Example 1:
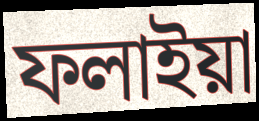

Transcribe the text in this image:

ফলাইয়া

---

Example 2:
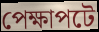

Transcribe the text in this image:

পেক্ষাপটে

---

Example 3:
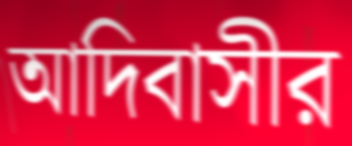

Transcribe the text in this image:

আদিবাসীর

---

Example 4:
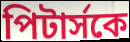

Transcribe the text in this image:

পিটার্সকে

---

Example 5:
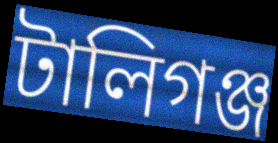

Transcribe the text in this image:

টালিগঞ্জ